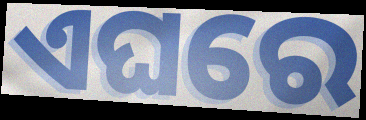
ଏଘରେ